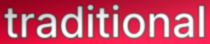
traditional